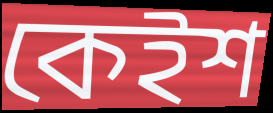
কেইশ